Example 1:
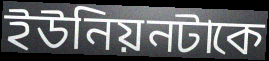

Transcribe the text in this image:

ইউনিয়নটাকে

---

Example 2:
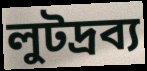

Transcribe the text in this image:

লুটদ্রব্য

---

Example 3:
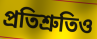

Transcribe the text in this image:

প্রতিশ্রুতিও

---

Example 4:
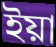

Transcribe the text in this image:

ইয়া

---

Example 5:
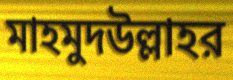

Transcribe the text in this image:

মাহমুদউল্লাহর